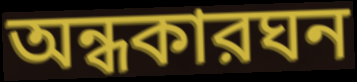
অন্ধকারঘন